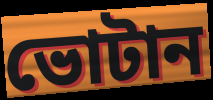
ভোটান